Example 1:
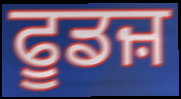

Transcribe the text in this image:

ਫੂਡਜ਼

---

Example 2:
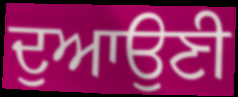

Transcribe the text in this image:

ਦੁਆਉਣੀ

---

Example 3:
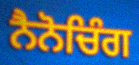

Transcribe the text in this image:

ਨੈਨੋਚਿੰਗ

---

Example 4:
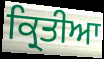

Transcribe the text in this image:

ਕ੍ਰਿਤੀਆ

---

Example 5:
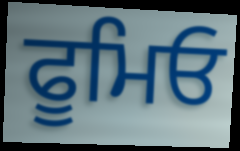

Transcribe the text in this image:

ਫੂਮਿਓ